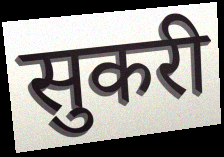
सुकरी